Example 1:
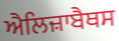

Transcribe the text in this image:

ਐਲਿਜ਼ਾਬੈਥਸ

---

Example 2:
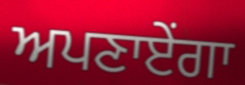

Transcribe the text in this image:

ਅਪਣਾਏਂਗਾ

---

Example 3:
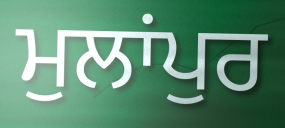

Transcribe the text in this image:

ਮੁਲਾਂਪੁਰ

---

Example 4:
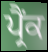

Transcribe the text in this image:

ਪ੍ਰੈਂਕ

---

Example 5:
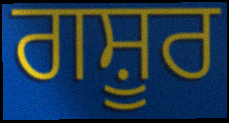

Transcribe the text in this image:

ਗਸ਼ੂਰ